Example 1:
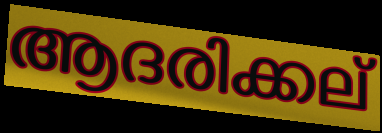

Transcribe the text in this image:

ആദരിക്കല്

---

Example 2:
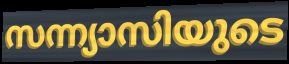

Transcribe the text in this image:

സന്ന്യാസിയുടെ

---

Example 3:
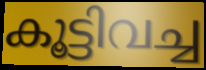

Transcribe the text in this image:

കൂട്ടിവച്ച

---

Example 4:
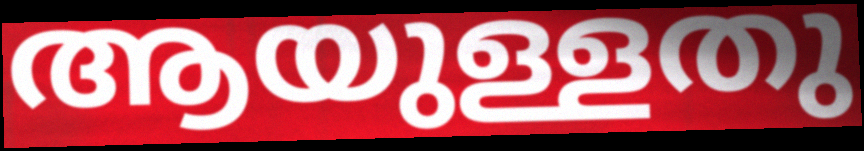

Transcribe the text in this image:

ആയുള്ളതു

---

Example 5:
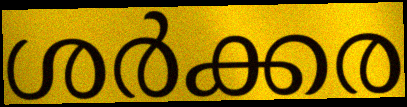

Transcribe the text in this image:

ശർക്കര